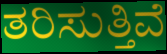
ತರಿಸುತ್ತಿವೆ